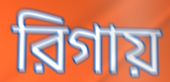
রিগায়